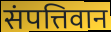
संपत्तिवान